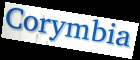
Corymbia